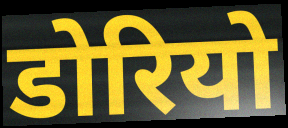
डोरियो